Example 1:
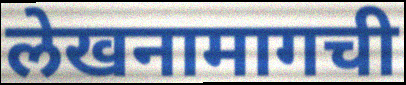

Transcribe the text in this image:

लेखनामागची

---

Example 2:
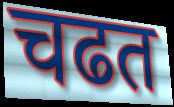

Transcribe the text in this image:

चढत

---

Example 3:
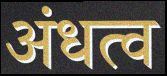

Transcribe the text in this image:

अंधत्व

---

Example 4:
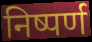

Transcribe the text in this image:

निष्पर्ण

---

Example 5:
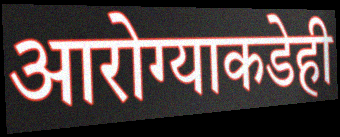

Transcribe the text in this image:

आरोग्याकडेही